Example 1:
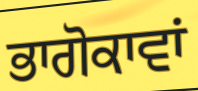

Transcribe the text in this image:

ਭਾਗੋਕਾਵਾਂ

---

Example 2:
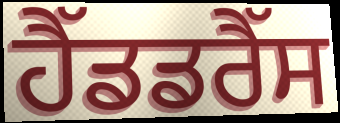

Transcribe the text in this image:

ਹੈੱਡਡਰੈੱਸ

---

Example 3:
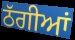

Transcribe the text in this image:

ਠੱਗੀਆਂ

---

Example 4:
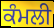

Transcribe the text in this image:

ਕੰਮਲੀ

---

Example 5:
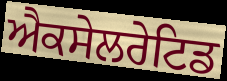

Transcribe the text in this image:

ਐਕਸੇਲਰੇਟਿਡ